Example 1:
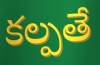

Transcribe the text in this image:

కల్పతే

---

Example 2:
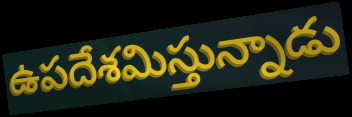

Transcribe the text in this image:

ఉపదేశమిస్తున్నాడు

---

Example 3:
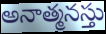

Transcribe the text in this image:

అనాత్మనస్తు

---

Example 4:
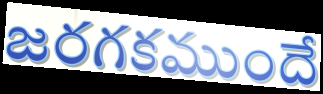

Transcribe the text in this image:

జరగకముందే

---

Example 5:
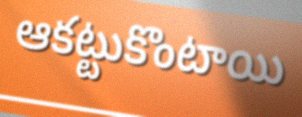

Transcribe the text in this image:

ఆకట్టుకొంటాయి